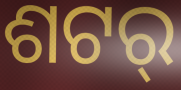
ଶଟର୍